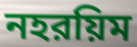
নহরয়িম